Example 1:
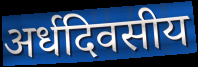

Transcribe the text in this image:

अर्धदिवसीय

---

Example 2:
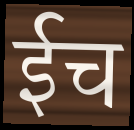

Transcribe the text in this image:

ईच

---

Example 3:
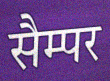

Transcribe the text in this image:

सैम्पर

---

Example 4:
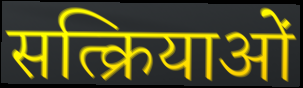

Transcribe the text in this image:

सत्क्रियाओं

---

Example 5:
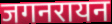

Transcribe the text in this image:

जगनरायन